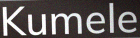
Kumele